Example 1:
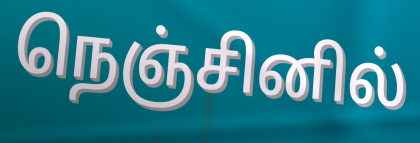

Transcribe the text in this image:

நெஞ்சினில்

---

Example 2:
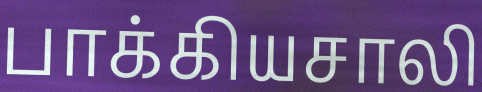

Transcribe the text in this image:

பாக்கியசாலி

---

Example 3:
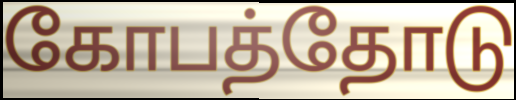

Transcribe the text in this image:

கோபத்தோடு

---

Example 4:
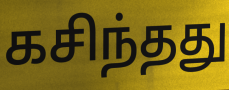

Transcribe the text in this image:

கசிந்தது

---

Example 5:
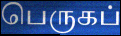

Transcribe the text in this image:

பெருகப்